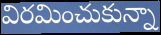
విరమించుకున్నా